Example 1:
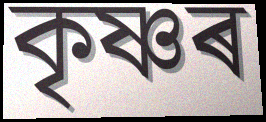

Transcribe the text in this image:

কৃষ্ণৰ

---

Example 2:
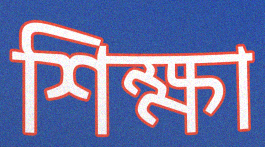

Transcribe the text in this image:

শিক্ষা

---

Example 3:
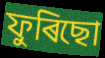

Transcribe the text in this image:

ফুৰিছো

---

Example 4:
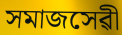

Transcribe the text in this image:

সমাজসেৱী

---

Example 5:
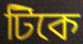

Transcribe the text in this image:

টিকে